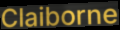
Claiborne